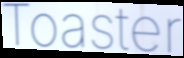
Toaster